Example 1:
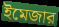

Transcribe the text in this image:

ইমেজার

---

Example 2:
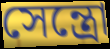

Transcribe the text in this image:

সেন্ত্রো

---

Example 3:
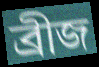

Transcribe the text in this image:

ব্রীজ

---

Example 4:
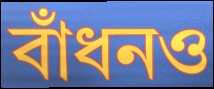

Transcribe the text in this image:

বাঁধনও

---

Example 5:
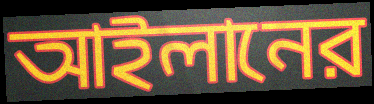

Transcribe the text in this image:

আইলানের